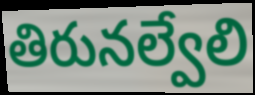
తిరునల్వేలి